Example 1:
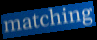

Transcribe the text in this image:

matching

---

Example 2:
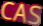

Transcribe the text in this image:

CAS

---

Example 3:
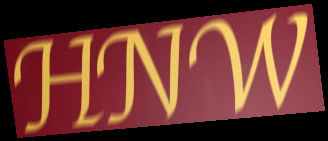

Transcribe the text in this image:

HNW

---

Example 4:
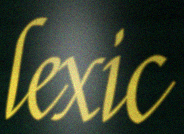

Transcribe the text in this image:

lexic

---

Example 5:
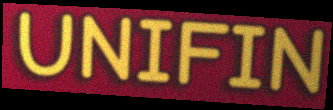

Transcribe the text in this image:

UNIFIN